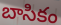
బాసికం